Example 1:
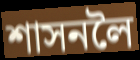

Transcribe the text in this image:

শাসনলৈ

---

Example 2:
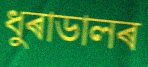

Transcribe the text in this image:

ধুৰাডালৰ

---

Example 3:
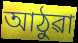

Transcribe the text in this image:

আঠুৱা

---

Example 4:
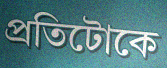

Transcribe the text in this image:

প্ৰতিটোকে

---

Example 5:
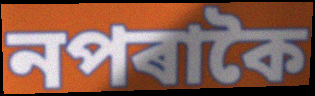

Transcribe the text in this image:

নপৰাকৈ